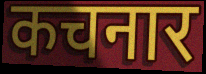
कचनार